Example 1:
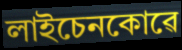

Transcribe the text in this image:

লাইচেনকোৱে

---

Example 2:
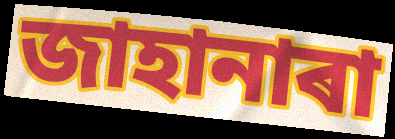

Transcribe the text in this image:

জাহানাৰা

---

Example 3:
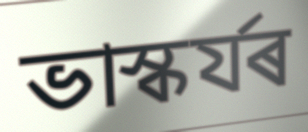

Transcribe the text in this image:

ভাস্কৰ্যৰ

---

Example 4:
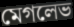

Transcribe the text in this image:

মেগলেভ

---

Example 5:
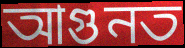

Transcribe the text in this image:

আগুনত